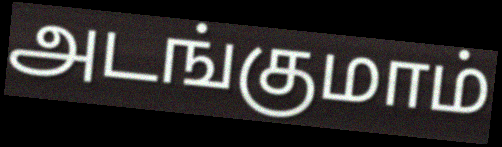
அடங்குமாம்